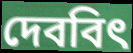
দেববিৎ